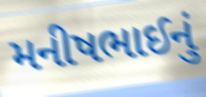
મનીષભાઈનું